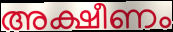
അക്ഷീണം